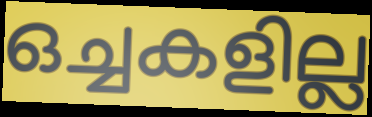
ഒച്ചകളില്ല